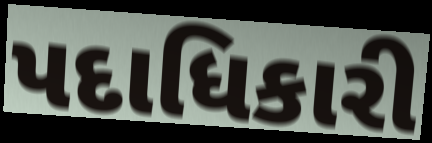
પદાધિકારી